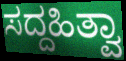
ಸದ್ದಹಿತ್ವಾ